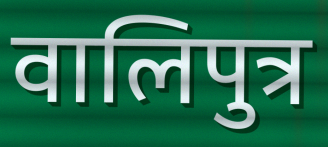
वालिपुत्र